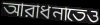
আরাধনাতেও